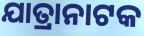
ଯାତ୍ରାନାଟକ